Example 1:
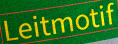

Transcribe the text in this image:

Leitmotif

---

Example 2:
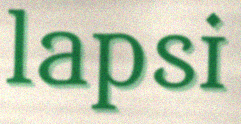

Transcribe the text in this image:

lapsi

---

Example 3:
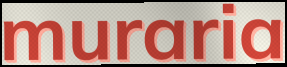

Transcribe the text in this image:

muraria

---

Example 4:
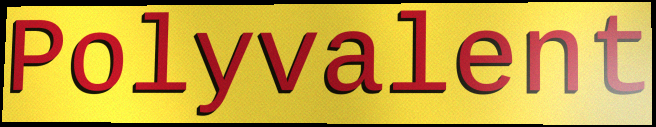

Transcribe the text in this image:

Polyvalent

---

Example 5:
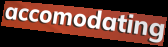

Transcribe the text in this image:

accomodating